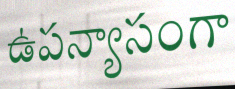
ఉపన్యాసంగా